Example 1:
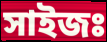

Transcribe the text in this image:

সাইজঃ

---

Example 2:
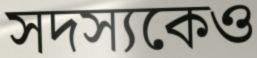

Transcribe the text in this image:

সদস্যকেও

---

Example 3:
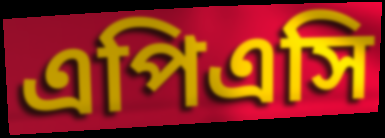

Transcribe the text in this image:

এপিএসি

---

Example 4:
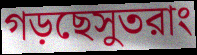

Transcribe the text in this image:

গড়ছেসুতরাং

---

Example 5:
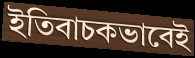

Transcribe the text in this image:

ইতিবাচকভাবেই